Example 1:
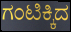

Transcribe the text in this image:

ಗಂಟಿಕ್ಕಿದ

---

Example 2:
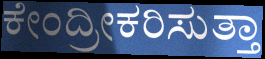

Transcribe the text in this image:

ಕೇಂದ್ರೀಕರಿಸುತ್ತಾ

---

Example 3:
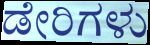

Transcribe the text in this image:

ಡೇರಿಗಳು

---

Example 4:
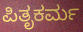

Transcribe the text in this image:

ಪಿತೃಕರ್ಮ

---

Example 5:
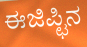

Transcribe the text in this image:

ಈಜಿಪ್ಟಿನ